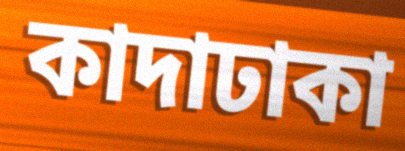
কাদাঢাকা